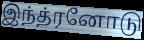
இந்த்ரனோடு